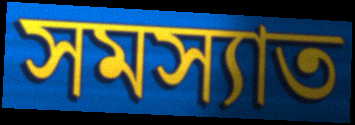
সমস্যাত